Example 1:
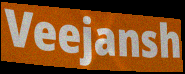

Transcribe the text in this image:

Veejansh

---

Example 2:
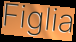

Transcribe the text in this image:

Figlia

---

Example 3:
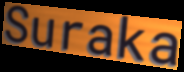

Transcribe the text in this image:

Suraka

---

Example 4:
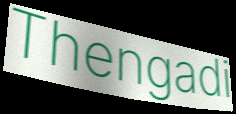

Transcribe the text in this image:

Thengadi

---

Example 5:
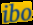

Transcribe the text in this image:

ibo